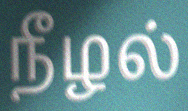
நீழல்